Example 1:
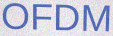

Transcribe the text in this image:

OFDM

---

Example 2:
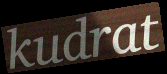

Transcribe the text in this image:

kudrat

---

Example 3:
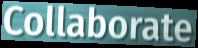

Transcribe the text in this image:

Collaborate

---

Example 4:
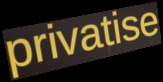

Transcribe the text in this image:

privatise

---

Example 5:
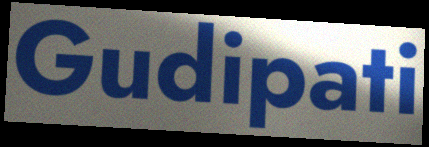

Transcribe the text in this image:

Gudipati